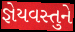
જ્ઞેયવસ્તુને